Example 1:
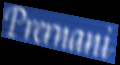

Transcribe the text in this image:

Prernani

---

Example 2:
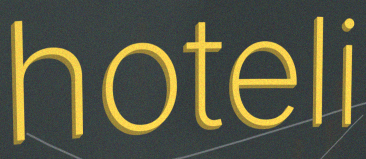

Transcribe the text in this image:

hoteli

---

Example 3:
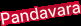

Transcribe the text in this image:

Pandavara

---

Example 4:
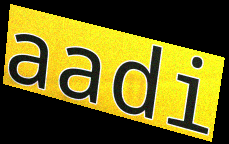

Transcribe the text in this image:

aadi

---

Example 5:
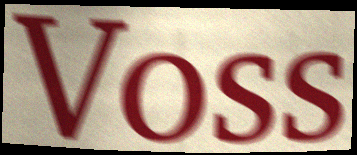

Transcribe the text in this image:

Voss